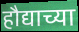
हौद्याच्या